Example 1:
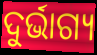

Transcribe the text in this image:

ଦୁର୍ଭାଗ୍ୟ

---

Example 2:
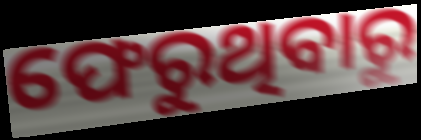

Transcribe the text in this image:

ଫେରୁଥିବାରୁ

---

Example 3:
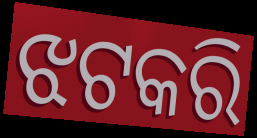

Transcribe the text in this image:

ଝଟକରି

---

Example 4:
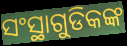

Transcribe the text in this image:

ସଂସ୍ଥାଗୁଡିକଙ୍କ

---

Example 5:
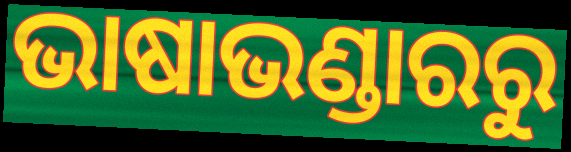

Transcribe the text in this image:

ଭାଷାଭଣ୍ଡାରରୁ